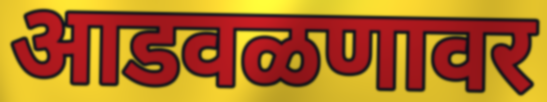
आडवळणावर